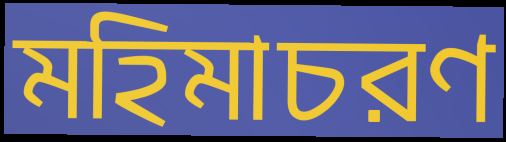
মহিমাচরণ